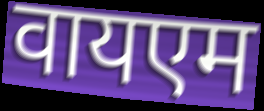
वायएम